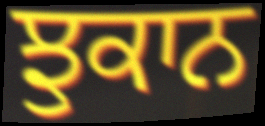
ਝੁਕਾਨ